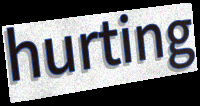
hurting